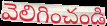
వెలిగించండి